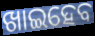
ଖାଇହେବ